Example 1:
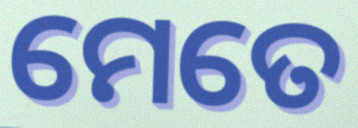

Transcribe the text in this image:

ମେତେ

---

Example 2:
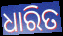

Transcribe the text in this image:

ଧାରିତ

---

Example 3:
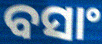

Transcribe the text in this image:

ବସାଂ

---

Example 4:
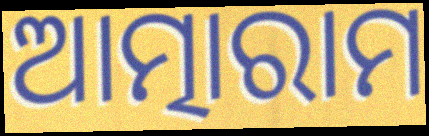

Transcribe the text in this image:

ଆତ୍ମାରାମ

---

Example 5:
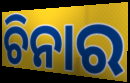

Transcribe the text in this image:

ଚିନାର